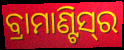
ବ୍ରାମାଣ୍ଟିସ୍‌ର